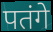
पतंगे